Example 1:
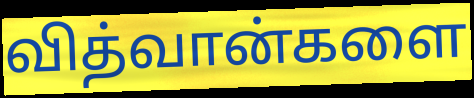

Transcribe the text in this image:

வித்வான்களை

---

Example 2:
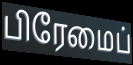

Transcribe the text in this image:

பிரேமைப்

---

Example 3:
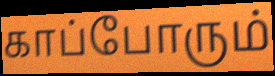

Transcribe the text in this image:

காப்போரும்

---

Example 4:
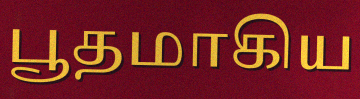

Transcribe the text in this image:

பூதமாகிய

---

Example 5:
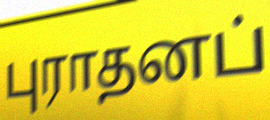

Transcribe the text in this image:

புராதனப்